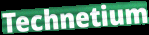
Technetium